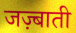
जज़्बाती